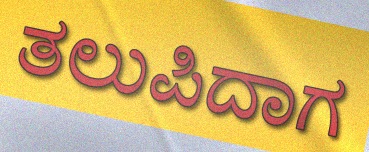
ತಲುಪಿದಾಗ